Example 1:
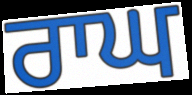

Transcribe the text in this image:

ਰਾਘ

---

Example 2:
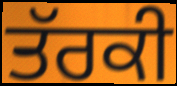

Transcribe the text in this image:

ਤੱਰਕੀ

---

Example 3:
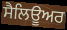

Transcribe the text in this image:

ਸੈਲਿਊਅਰ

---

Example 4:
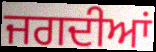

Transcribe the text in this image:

ਜਗਦੀਆਂ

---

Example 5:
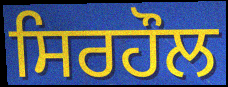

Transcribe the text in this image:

ਸਿਰਹੌਲ